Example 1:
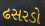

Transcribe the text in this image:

ઢસરડો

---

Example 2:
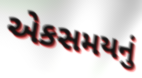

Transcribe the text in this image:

એકસમયનું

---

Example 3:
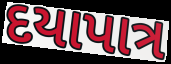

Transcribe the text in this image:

દયાપાત્ર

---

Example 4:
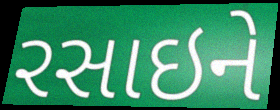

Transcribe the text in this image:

રસાઇને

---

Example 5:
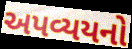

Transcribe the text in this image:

અપવ્યયનો